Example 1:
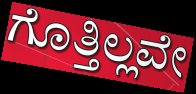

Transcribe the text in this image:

ಗೊತ್ತಿಲ್ಲವೇ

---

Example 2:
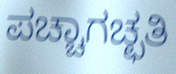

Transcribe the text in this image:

ಪಚ್ಚಾಗಚ್ಛತಿ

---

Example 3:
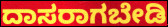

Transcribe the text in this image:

ದಾಸರಾಗಬೇಡಿ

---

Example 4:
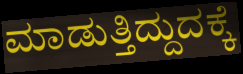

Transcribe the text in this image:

ಮಾಡುತ್ತಿದ್ದುದಕ್ಕೆ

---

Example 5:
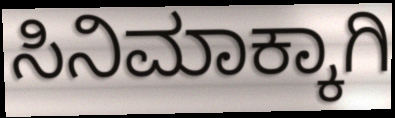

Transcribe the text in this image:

ಸಿನಿಮಾಕ್ಕಾಗಿ